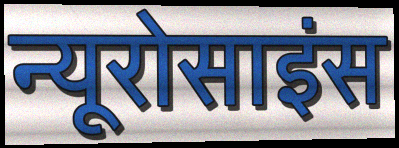
न्यूरोसाइंस